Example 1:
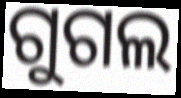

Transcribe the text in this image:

ଗୁଗଲ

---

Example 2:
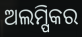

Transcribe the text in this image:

ଅଲମ୍ପିକର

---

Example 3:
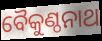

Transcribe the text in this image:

ବୈକୁଣ୍ଠନାଥ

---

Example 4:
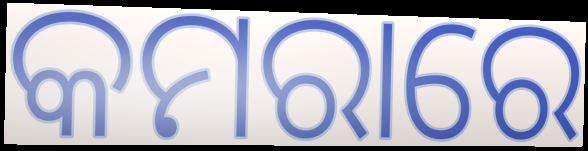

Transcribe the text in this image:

କମରାରେ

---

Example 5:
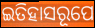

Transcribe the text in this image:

ଇତିହାସରୂପେ